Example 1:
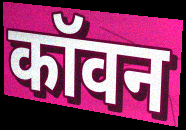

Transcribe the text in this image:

कॉवन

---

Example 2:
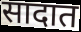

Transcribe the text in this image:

सादात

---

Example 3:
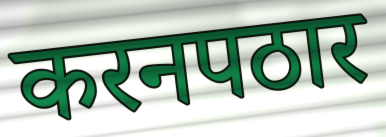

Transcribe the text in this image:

करनपठार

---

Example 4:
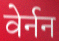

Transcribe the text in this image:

वेर्नन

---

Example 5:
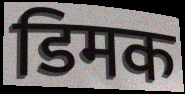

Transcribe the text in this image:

डिमक